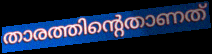
താരത്തിന്റെതാണത്